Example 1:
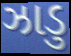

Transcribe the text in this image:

ઝાડુ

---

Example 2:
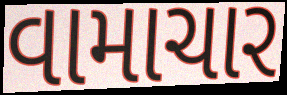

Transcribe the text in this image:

વામાચાર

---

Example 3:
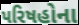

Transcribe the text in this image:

પરિષહોના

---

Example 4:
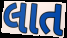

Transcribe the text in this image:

લાત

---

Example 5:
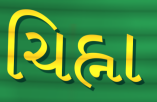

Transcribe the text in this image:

ચિહ્ના